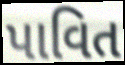
પાવિત